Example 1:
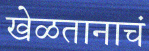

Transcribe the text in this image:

खेळतानाचं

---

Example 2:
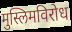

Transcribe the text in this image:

मुस्लिमविरोध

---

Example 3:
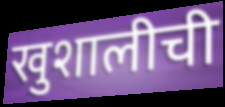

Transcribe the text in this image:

खुशालीची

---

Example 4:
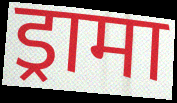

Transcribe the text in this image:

ड्रामा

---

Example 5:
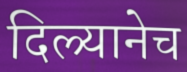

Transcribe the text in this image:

दिल्यानेच